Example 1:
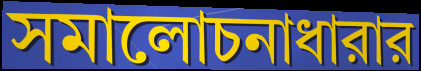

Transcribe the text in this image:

সমালোচনাধারার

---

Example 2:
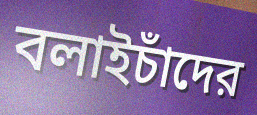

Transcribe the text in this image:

বলাইচাঁদের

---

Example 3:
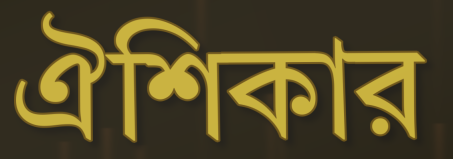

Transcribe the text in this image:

ঐশিকার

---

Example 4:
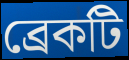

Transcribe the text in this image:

ব্রেকটি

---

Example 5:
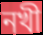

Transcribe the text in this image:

নখী